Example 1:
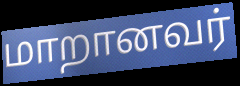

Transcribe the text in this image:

மாறானவர்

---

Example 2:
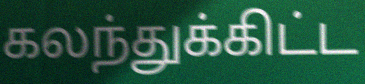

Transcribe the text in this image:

கலந்துக்கிட்ட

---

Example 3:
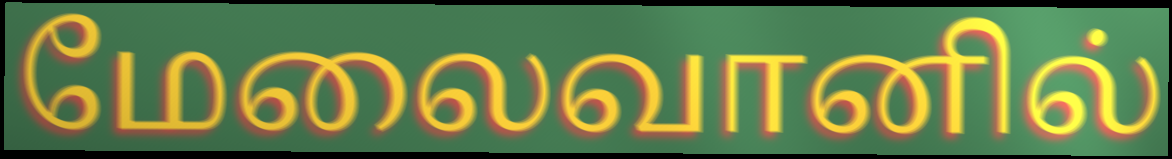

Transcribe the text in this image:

மேலைவானில்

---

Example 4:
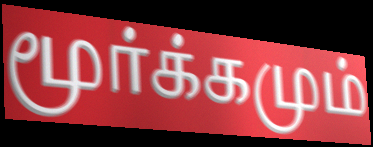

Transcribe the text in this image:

மூர்க்கமும்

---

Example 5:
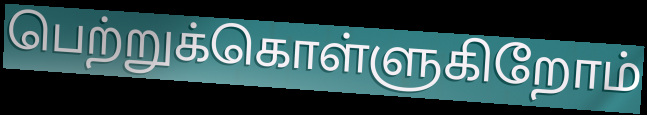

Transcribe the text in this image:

பெற்றுக்கொள்ளுகிறோம்